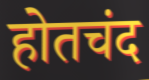
होतचंद